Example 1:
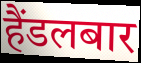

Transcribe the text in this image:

हैंडलबार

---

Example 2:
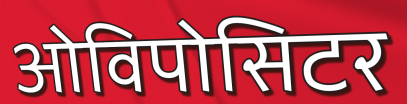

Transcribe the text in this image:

ओविपोसिटर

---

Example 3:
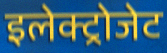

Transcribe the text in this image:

इलेक्ट्रोजेट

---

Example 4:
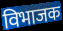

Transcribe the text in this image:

विभाजक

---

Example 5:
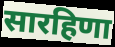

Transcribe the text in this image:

सारहिणा